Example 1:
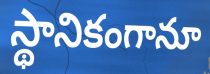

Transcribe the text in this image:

స్థానికంగానూ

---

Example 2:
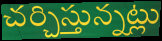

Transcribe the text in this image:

చర్చిస్తున్నట్లు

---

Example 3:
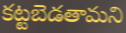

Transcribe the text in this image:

కట్టబెడతామని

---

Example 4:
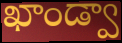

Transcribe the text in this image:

ఖాండ్వా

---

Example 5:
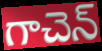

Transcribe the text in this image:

గాచెన్